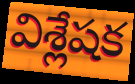
విశ్లేషక